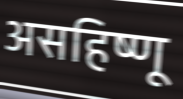
असहिष्णू